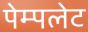
पेम्पलेट